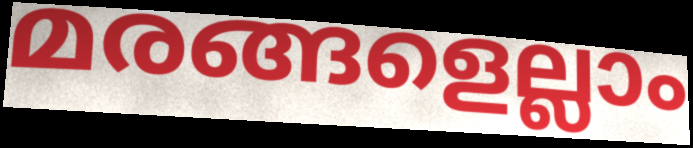
മരങ്ങളെല്ലാം